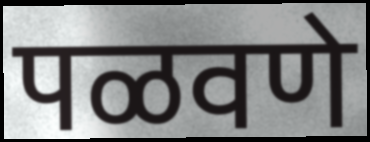
पळवणे